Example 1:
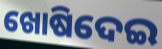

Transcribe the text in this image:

ଖୋଷିଦେଇ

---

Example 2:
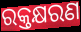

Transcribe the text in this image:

ରକ୍ତକ୍ଷରଣ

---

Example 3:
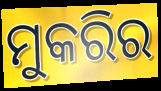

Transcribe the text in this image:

ମୁକରିର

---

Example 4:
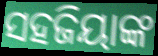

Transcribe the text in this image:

ସହଜିୟାଙ୍କ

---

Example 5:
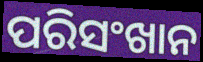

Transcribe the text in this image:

ପରିସଂଖାନ